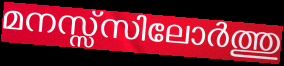
മനസ്സ്സിലോർത്തു